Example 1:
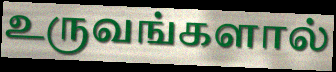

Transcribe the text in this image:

உருவங்களால்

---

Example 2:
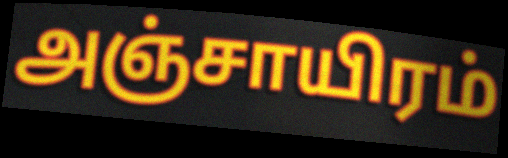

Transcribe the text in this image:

அஞ்சாயிரம்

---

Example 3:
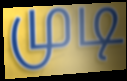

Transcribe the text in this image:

முடி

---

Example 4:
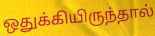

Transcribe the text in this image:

ஒதுக்கியிருந்தால்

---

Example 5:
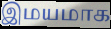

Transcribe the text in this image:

இமயமாக